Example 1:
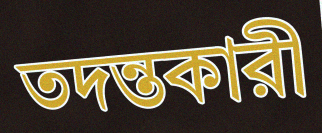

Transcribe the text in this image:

তদন্তকারী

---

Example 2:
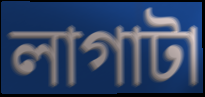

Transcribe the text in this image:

লাগাটা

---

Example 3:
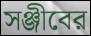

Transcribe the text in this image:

সঞ্জীবের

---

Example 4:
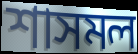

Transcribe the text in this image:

শাসমল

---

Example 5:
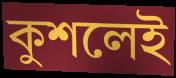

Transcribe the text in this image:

কুশলেই